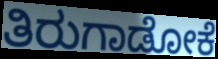
ತಿರುಗಾಡೋಕೆ